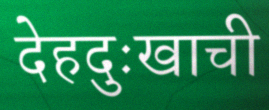
देहदुःखाची